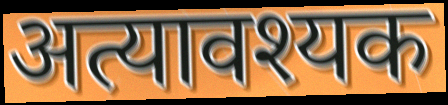
अत्यावश्यक